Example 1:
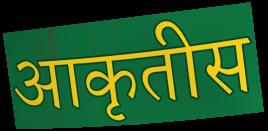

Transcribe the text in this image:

आकृतीस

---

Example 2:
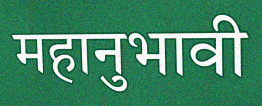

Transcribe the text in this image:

महानुभावी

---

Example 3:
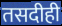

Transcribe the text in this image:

तसदीही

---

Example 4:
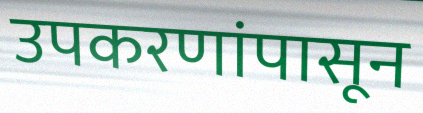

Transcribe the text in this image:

उपकरणांपासून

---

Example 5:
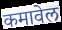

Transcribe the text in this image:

कमावेल